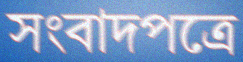
সংবাদপত্রে